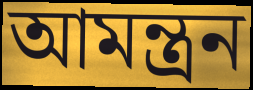
আমন্ত্রন